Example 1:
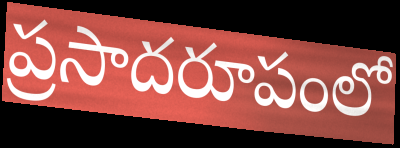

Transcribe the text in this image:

ప్రసాదరూపంలో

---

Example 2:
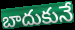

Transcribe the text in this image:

బాదుకునే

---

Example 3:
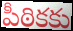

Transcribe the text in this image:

పీఠికకు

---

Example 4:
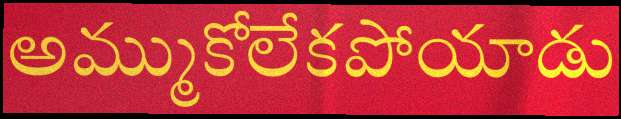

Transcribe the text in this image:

అమ్ముకోలేకపోయాడు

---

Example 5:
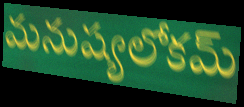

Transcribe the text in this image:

మనుష్యలోకమ్